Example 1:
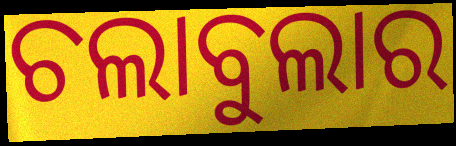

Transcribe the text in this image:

ଚଲାବୁଲାର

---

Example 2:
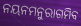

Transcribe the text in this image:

ନୟନମନୁରାଗମିବ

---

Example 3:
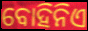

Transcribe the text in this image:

ବୋହିନିଏ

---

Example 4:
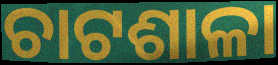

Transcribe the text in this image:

ଚାଟଶାଳା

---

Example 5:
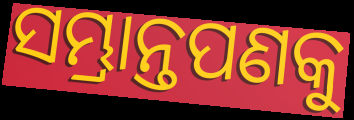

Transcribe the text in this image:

ସମ୍ଭ୍ରାନ୍ତପଣକୁ